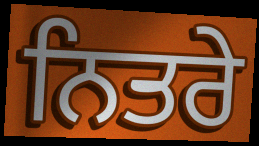
ਨਿਤਰੇ